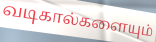
வடிகால்களையும்